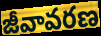
జీవావరణ